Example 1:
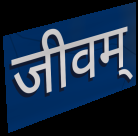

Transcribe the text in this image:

जीवम्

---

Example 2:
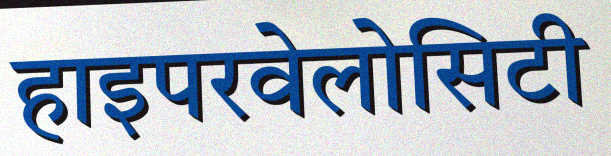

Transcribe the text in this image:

हाइपरवेलोसिटी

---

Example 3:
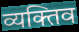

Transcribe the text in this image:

व्यक्तिव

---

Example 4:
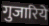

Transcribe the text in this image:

गुजारिये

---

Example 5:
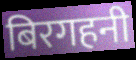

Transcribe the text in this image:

बिरगहनी